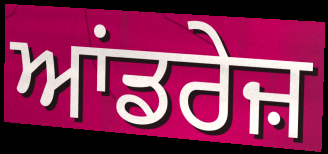
ਆਂਡਰੇਜ਼